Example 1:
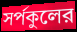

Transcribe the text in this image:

সর্পকুলের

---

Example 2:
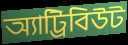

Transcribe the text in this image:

অ্যাট্রিবিউট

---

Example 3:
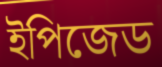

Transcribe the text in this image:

ইপিজেড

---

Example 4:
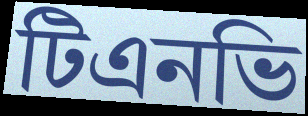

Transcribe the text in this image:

টিএনভি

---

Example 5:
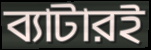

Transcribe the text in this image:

ব্যাটারই